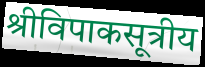
श्रीविपाकसूत्रीय